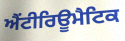
ਐਂਟੀਰਿਊਮੈਟਿਕ